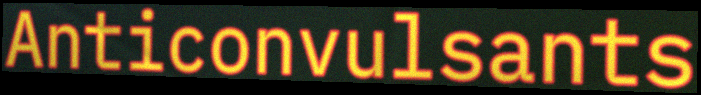
Anticonvulsants